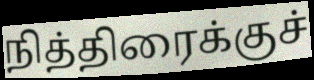
நித்திரைக்குச்